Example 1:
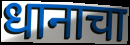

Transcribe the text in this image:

धानाचा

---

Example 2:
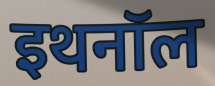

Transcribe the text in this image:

इथनॉल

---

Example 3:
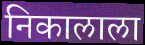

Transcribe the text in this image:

निकालाला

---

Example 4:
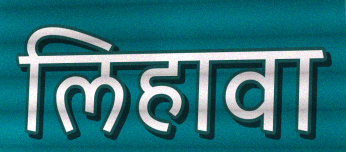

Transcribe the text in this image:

लिहावा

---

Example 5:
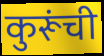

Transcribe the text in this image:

कुरूंची